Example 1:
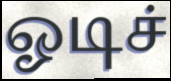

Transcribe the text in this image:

ஓடிச்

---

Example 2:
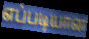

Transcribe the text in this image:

எப்படியான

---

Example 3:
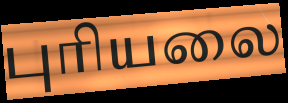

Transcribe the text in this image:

புரியலை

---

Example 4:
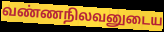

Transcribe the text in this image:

வண்ணநிலவனுடைய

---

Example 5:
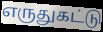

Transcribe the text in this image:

எருதுகட்டு